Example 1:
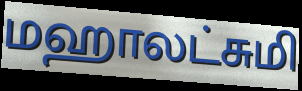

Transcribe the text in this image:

மஹாலட்சுமி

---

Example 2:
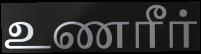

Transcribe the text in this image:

உணரீர்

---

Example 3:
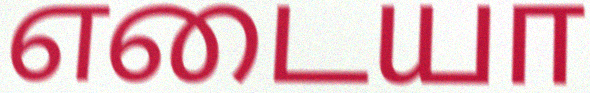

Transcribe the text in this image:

எடையா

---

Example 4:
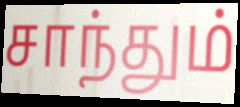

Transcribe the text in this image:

சாந்தும்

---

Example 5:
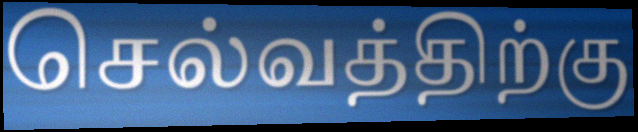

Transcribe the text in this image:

செல்வத்திற்கு